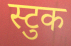
स्टुक